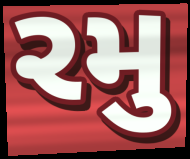
રમુ